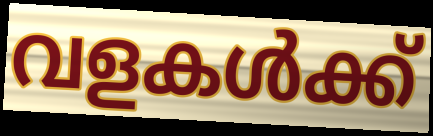
വളകൾക്ക്